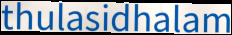
thulasidhalam